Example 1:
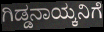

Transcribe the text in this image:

ಗಿಡ್ಡನಾಯ್ಕನಿಗೆ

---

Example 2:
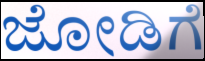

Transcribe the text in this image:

ಜೋಡಿಗೆ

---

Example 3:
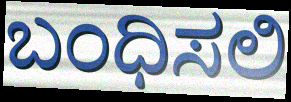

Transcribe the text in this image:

ಬಂಧಿಸಲಿ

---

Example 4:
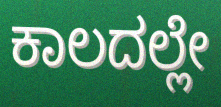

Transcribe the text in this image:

ಕಾಲದಲ್ಲೇ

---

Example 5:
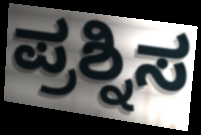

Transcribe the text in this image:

ಪ್ರಶ್ನಿಸ